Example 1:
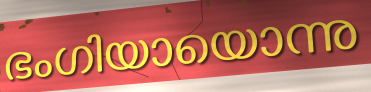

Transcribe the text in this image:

ഭംഗിയായൊന്നു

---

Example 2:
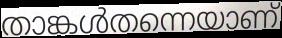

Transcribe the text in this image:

താങ്കൾതന്നെയാണ്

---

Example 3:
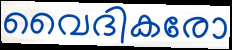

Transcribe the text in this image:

വൈദികരോ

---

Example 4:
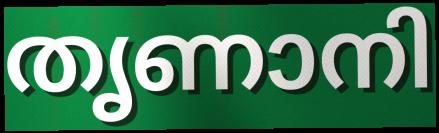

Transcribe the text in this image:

തൃണാനി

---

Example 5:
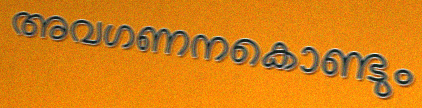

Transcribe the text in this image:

അവഗണനകൊണ്ടും